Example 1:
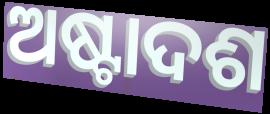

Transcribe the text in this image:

ଅଷ୍ଟାଦଶ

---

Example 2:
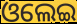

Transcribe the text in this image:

ଓଲେଇ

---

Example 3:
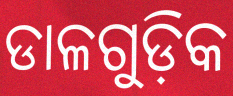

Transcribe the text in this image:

ଡାଳଗୁଡ଼ିକ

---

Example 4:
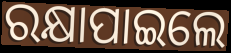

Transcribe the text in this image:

ରକ୍ଷାପାଇଲେ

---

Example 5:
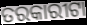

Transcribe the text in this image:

ତରକାରୀଟା